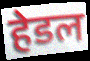
हेडल